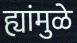
ह्यांमुळे